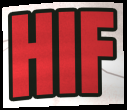
HIF